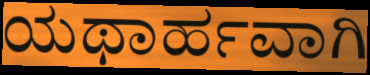
ಯಥಾರ್ಹವಾಗಿ